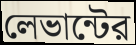
লেভান্টের